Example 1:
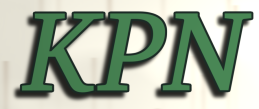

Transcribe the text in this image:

KPN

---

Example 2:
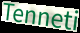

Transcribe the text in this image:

Tenneti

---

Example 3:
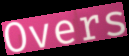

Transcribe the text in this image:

Overs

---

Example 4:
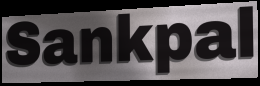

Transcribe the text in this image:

Sankpal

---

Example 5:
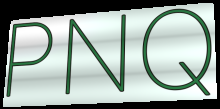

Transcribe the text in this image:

PNQ